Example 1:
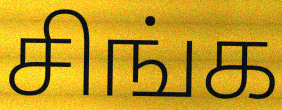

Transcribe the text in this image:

சிங்க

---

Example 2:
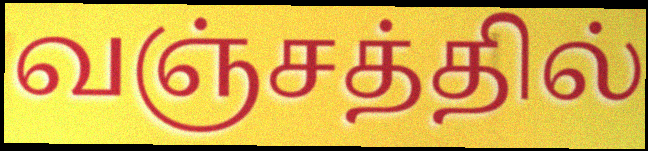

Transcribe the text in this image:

வஞ்சத்தில்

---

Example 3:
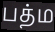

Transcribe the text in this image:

பத்ம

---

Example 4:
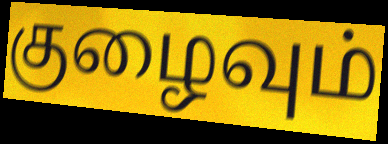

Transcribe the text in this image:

குழைவும்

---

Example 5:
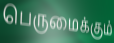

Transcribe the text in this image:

பெருமைக்கும்